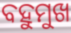
ବହୁମୁଖ